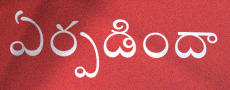
ఏర్పడిందా